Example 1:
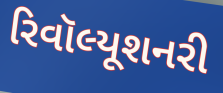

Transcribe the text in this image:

રિવૉલ્યૂશનરી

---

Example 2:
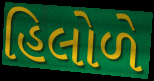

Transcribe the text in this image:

હિલોળે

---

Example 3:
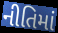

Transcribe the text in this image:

નીતિમાં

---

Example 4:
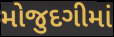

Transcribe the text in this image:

મોજુદગીમાં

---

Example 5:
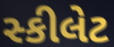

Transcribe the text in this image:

સ્કીલેટ